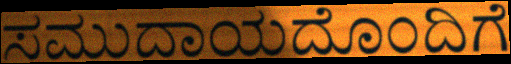
ಸಮುದಾಯದೊಂದಿಗೆ